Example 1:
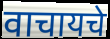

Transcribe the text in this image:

वाचायचे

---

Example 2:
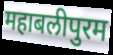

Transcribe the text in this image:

महाबलीपुरम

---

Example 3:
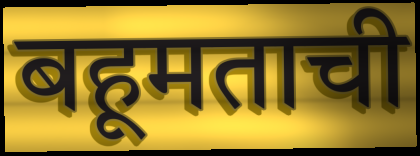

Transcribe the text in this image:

बहूमताची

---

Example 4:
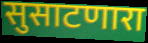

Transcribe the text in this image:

सुसाटणारा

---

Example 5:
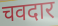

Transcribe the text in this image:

चवदार